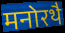
मनोरथै